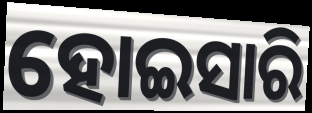
ହୋଇସାରି